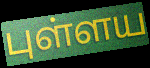
புள்ளய